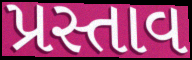
પ્રસ્તાવ